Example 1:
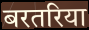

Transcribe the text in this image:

बरतरिया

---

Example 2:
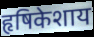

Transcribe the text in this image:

हृषिकेशाय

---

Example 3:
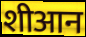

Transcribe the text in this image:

शीआन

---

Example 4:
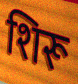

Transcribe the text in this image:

शिरू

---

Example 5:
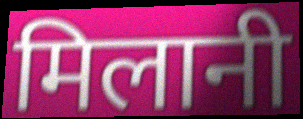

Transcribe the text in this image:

मिलानी